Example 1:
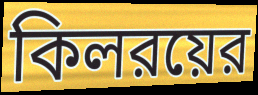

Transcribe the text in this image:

কিলরয়ের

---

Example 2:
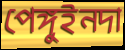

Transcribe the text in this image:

পেঙ্গুইনদা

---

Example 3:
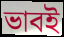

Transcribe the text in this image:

ভাবই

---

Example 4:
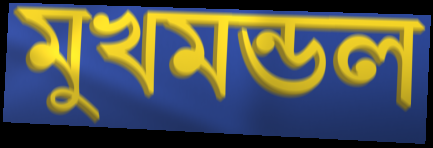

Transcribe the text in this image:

মুখমন্ডল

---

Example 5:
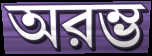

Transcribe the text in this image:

অরম্ভ